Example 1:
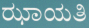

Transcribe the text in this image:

ಝಾಯತಿ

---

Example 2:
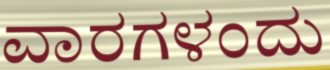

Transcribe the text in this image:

ವಾರಗಳಂದು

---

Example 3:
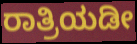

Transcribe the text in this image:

ರಾತ್ರಿಯಡೀ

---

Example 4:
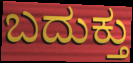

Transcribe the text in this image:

ಬದುಕ್ತು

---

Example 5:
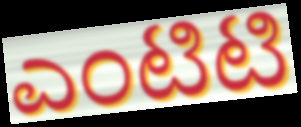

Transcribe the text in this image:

ಎಂಟಿಟಿ